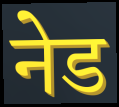
नेड